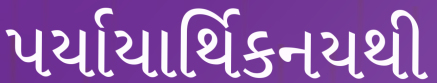
પર્યાયાર્થિકનયથી